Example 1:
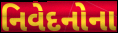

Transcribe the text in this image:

નિવેદનોના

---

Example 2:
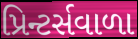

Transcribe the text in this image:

પ્રિન્ટર્સવાળા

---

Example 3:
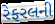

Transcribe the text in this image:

રેફરલની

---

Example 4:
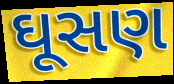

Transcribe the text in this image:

ઘૂસણ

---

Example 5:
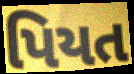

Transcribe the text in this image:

પિયત